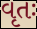
વૃતઃ